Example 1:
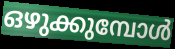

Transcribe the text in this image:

ഒഴുക്കുമ്പോൾ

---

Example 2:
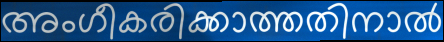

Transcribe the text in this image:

അംഗീകരിക്കാത്തതിനാൽ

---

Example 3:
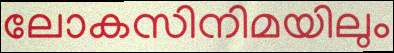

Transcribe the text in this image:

ലോകസിനിമയിലും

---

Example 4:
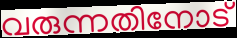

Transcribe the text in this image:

വരുന്നതിനോട്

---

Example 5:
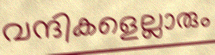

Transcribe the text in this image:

വന്ദികളെല്ലാരും